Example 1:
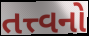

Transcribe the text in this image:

તત્ત્વનો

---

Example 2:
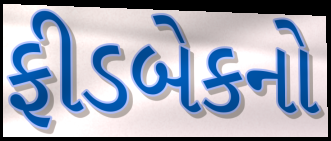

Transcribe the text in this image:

ફીડબેકનો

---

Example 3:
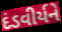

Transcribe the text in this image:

દંડવીર્યને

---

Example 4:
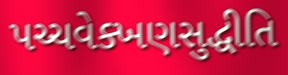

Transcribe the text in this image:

પચ્ચવેક્ખણસુદ્ધીતિ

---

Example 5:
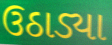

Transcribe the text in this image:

ઉઠાડ્યા